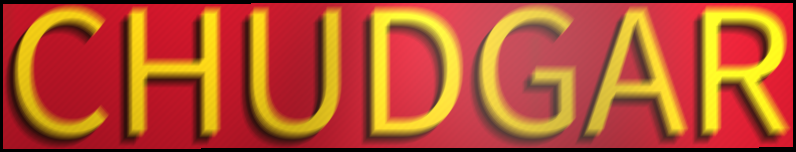
CHUDGAR